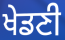
ਖੇਡਣੀ